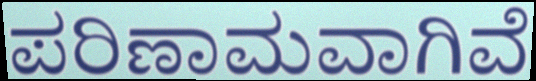
ಪರಿಣಾಮವಾಗಿವೆ